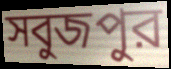
সবুজপুর